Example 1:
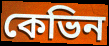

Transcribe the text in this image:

কেভিন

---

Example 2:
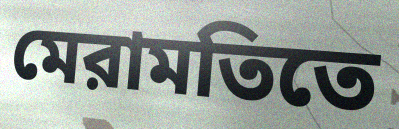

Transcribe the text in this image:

মেরামতিতে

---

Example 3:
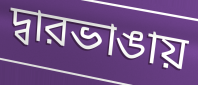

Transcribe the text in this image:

দ্বারভাঙায়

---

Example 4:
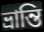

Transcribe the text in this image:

ভ্রান্তি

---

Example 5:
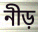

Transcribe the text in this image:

নীড়